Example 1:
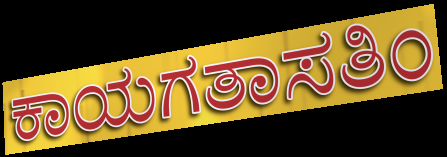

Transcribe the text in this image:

ಕಾಯಗತಾಸತಿಂ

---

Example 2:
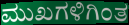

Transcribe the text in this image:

ಮುಖಗಳಿಗಿಂತ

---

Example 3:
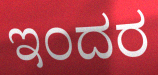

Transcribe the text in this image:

ಇಂದರ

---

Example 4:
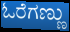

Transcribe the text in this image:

ಓರೆಗಣ್ಣು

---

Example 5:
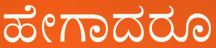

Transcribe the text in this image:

ಹೇಗಾದರೂ